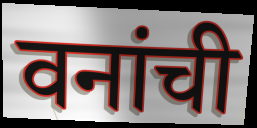
वनांची